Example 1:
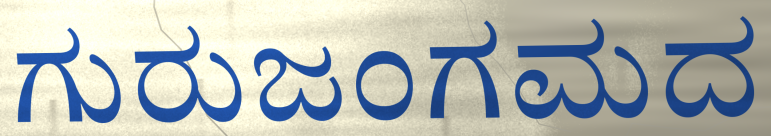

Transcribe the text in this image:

ಗುರುಜಂಗಮದ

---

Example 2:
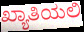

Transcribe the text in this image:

ಖ್ಯಾತಿಯಲಿ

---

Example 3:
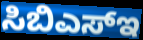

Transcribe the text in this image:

ಸಿಬಿಎಸ್ಇ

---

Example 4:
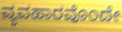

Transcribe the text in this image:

ವ್ಯವಹಾರವೊಂದೇ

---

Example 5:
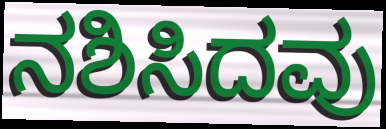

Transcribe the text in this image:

ನಶಿಸಿದವು